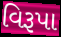
વિરૂપા